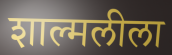
शाल्मलीला